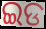
ଇଡ